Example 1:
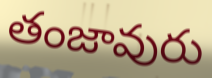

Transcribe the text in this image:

తంజావురు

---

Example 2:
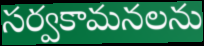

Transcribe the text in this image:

సర్వకామనలను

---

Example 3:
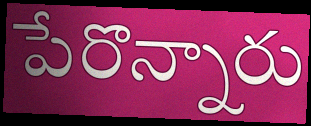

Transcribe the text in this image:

పేరొన్నారు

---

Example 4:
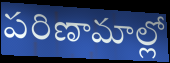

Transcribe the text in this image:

పరిణామాల్లో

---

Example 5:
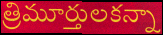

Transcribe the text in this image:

త్రిమూర్తులకన్నా